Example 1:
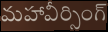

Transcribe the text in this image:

మహావీర్సింగ్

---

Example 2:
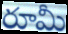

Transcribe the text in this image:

రూమీ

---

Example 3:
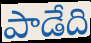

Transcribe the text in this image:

పాడేది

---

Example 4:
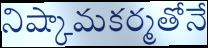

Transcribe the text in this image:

నిష్కామకర్మతోనే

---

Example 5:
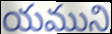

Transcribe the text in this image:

యముని